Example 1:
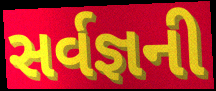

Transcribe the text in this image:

સર્વજ્ઞની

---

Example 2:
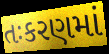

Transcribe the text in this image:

તઃકરણમાં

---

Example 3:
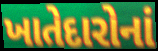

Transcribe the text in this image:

ખાતેદારોનાં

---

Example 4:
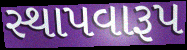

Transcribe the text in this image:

સ્થાપવારૂપ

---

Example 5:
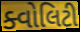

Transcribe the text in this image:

ક્વોલિટી